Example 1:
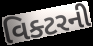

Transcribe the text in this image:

વિક્ટરની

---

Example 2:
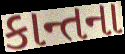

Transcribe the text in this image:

કાન્તના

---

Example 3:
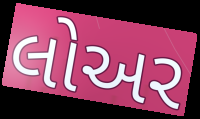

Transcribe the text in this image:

લોઅર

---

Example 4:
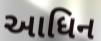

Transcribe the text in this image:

આધિન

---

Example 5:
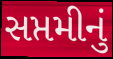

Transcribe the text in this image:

સપ્તમીનું